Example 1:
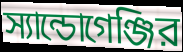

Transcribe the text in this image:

স্যান্ডোগেঞ্জির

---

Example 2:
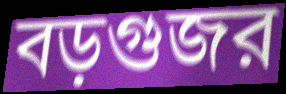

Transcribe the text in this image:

বড়গুজর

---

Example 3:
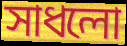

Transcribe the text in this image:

সাধলো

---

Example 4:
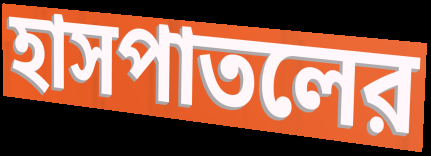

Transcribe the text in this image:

হাসপাতলের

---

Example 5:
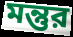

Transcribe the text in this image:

মন্তুর